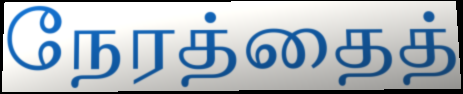
நேரத்தைத்